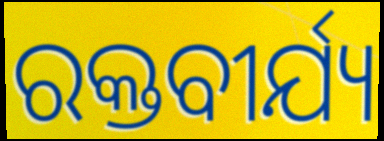
ରକ୍ତବୀର୍ଯ୍ୟ